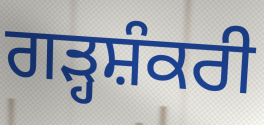
ਗੜ੍ਹਸ਼ੰਕਰੀ